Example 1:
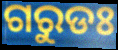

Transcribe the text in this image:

ଗରୁଡଃ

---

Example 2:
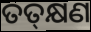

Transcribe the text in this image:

ତତ୍‌କ୍ଷଣ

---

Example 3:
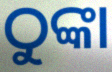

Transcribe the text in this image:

ଠୁଙ୍କା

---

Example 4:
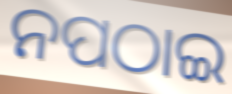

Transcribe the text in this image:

ନପଠାଇ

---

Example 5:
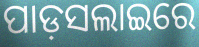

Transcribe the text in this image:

ପାଡ଼ସଲାଇରେ